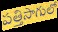
పత్తిసాగులో